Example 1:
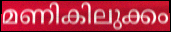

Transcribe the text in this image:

മണികിലുക്കം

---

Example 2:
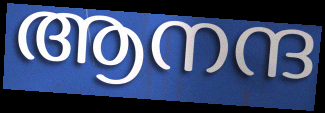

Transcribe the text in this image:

ആനന്ദ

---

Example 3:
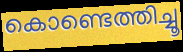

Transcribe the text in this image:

കൊണ്ടെത്തിച്ചൂ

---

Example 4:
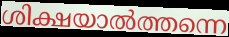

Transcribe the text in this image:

ശിക്ഷയാൽത്തന്നെ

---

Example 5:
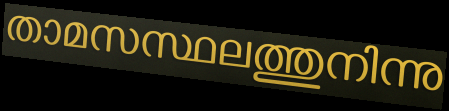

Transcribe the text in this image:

താമസസ്ഥലത്തുനിന്നു